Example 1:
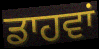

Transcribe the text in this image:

ਡਾਹਵਾਂ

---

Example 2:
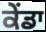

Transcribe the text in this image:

ਕੇਂਡਾ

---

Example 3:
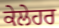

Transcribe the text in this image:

ਕੇਲੇਹਰ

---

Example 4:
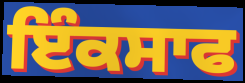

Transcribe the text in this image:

ਇੰਕਸਾਫ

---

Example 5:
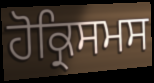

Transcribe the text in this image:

ਹੋਕ੍ਰਿਸਮਸ